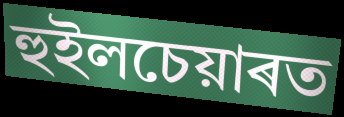
হুইলচেয়াৰত